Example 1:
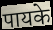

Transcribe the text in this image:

पायके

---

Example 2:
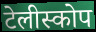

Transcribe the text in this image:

टेलीस्कोप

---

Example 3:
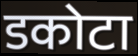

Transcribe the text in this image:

डकोटा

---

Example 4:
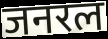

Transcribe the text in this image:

जनरल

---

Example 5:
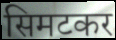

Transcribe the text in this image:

सिमटकर